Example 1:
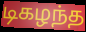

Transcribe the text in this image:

டிகழந்த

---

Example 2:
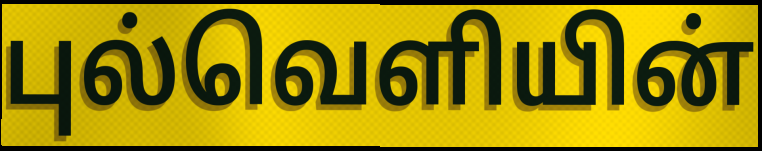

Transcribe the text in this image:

புல்வெளியின்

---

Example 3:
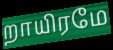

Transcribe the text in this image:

றாயிரமே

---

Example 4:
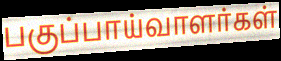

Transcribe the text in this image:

பகுப்பாய்வாளர்கள்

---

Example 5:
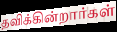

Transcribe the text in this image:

தவிக்கின்றார்கள்